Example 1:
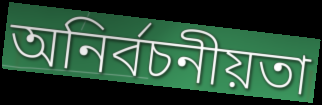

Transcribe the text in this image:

অনির্বচনীয়তা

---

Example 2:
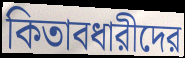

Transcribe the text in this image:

কিতাবধারীদের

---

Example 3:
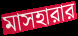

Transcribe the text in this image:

মাসহারার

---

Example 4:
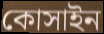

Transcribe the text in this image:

কোসাইন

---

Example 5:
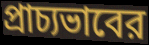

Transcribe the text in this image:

প্রাচ্যভাবের